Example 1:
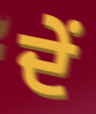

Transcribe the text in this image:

ਦੇਂ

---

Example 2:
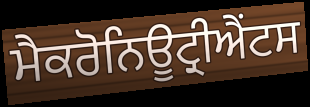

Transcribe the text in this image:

ਮੈਕਰੋਨਿਊਟ੍ਰੀਐਂਟਸ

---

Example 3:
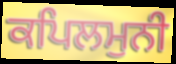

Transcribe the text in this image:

ਕਪਿਲਮੁਨੀ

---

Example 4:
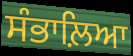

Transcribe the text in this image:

ਸੰਭਾਲ਼ਿਆ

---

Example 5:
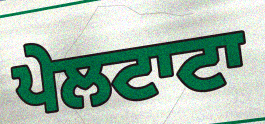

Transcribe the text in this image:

ਪੇਲਟਾਟਾ